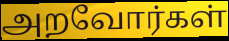
அறவோர்கள்